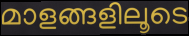
മാളങ്ങളിലൂടെ